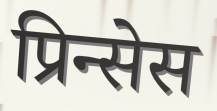
प्रिन्सेस